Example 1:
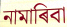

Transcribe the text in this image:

নামাৰিবা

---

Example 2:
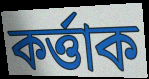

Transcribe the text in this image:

কৰ্ত্তাক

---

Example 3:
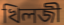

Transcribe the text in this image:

খিলজী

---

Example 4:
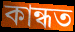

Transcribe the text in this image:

কান্ধত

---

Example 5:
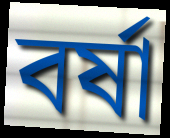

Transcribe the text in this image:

বৰ্ষা